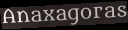
Anaxagoras